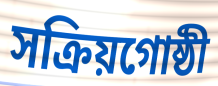
সক্রিয়গোষ্ঠী